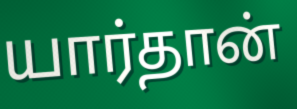
யார்தான்